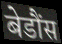
बेडौंस